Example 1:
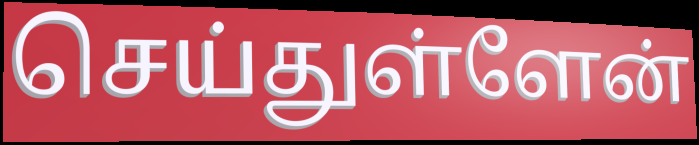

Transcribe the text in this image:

செய்துள்ளேன்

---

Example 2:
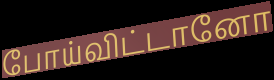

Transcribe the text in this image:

போய்விட்டானோ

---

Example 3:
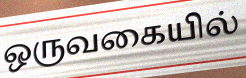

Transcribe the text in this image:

ஒருவகையில்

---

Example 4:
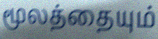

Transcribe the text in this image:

மூலத்தையும்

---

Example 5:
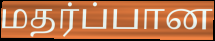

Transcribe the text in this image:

மதர்ப்பான